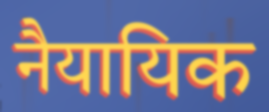
नैयायिक